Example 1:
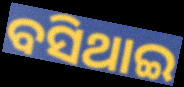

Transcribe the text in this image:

ବସିଥାଇ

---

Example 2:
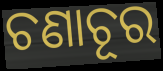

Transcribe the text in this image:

ଚଣାଚୂର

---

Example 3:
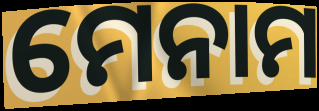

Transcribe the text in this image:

ମେନାମ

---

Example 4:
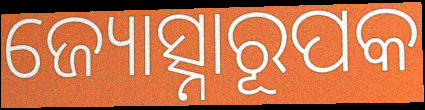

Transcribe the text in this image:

ଜ୍ୟୋତ୍ସ୍ନାରୂପକ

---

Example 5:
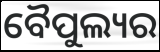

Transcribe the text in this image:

ବୈପୁଲ୍ୟର